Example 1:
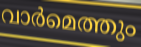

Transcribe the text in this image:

വാർമെത്തും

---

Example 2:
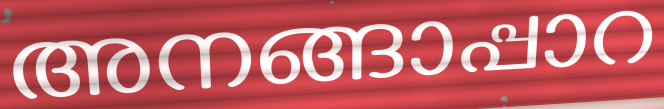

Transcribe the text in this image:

അനങ്ങാപ്പാറ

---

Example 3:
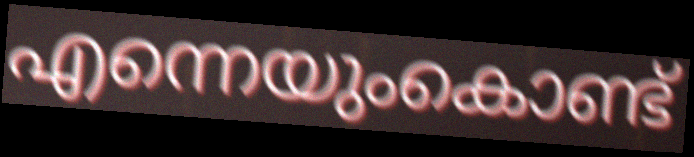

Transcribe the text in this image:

എന്നെയുംകൊണ്ട്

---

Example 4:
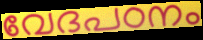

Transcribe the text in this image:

വേദപഠനം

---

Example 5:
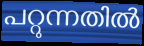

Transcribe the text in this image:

പറ്റുന്നതിൽ